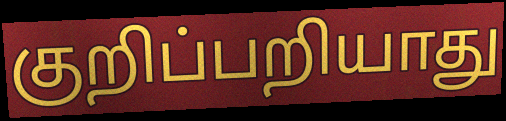
குறிப்பறியாது